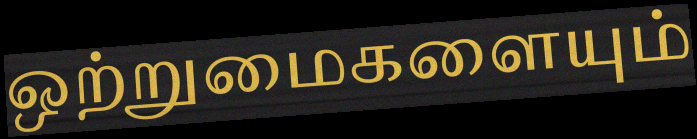
ஒற்றுமைகளையும்